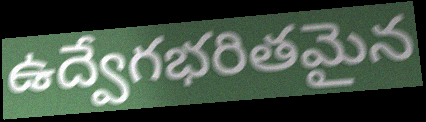
ఉద్వేగభరితమైన